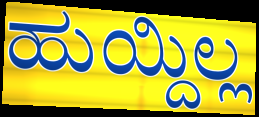
ಹುಯ್ದಿಲ್ಲ